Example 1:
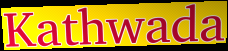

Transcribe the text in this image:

Kathwada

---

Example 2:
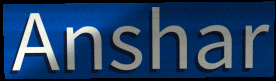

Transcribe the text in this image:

Anshar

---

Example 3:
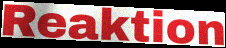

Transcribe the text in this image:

Reaktion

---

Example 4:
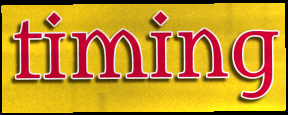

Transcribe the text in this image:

timing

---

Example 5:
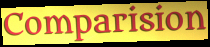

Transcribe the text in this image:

Comparision